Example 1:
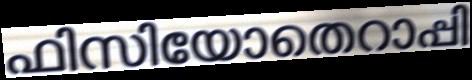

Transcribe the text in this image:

ഫിസിയോതെറാപ്പി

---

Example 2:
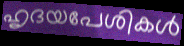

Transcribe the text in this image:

ഹൃദയപേശികൾ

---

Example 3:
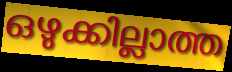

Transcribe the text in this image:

ഒഴുക്കില്ലാത്ത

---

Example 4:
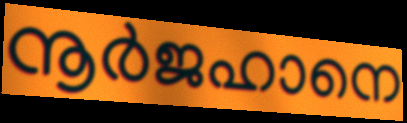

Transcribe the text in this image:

നൂർജഹാനെ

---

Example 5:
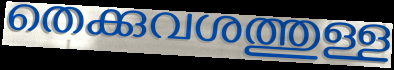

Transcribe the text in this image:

തെക്കുവശത്തുള്ള